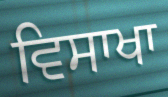
ਵਿਸਾਖਾ